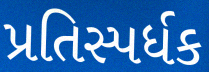
પ્રતિસ્પર્ધક